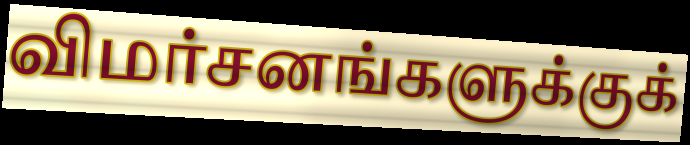
விமர்சனங்களுக்குக்